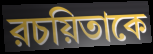
রচয়িতাকে